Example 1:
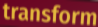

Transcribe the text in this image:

transform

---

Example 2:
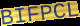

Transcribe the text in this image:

BIFPCL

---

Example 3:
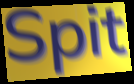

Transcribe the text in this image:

Spit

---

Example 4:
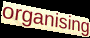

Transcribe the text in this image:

organising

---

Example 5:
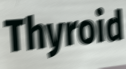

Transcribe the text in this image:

Thyroid